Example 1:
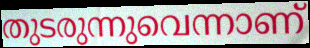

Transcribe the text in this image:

തുടരുന്നുവെന്നാണ്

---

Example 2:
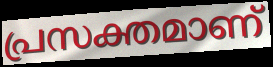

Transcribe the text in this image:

പ്രസക്തമാണ്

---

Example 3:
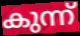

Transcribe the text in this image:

കുന്ന്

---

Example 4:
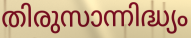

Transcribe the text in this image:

തിരുസാന്നിദ്ധ്യം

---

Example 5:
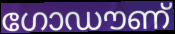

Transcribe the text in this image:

ഗോഡൗണ്